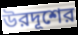
উরদূশের